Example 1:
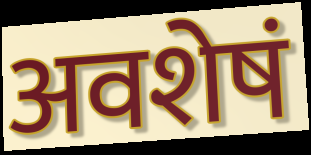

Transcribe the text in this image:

अवशेषं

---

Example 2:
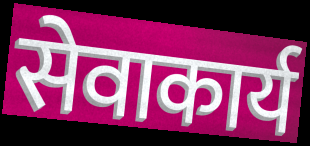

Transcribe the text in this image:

सेवाकार्य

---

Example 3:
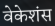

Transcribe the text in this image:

वेकेशंस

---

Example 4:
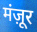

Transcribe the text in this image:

मंज़ूर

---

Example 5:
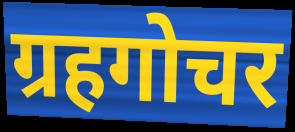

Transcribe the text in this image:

ग्रहगोचर